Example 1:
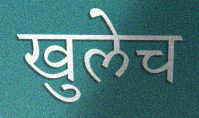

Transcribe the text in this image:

खुलेच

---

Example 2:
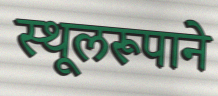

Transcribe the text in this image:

स्थूलरूपाने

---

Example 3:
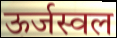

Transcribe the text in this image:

ऊर्जस्वल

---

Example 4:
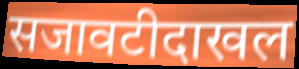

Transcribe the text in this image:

सजावटीदाखल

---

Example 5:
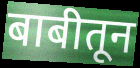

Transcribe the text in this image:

बाबीतून